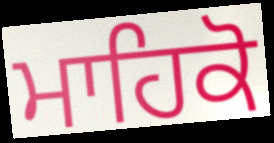
ਮਾਹਿਕੋ